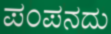
ಪಂಪನದು